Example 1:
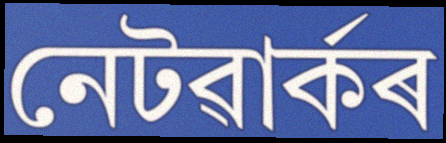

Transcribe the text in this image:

নেটৱাৰ্কৰ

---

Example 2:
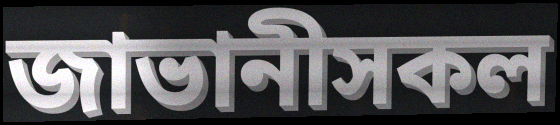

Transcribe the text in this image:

জাভানীসকল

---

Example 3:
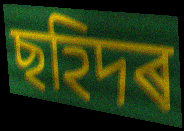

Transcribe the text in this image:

ছহিদৰ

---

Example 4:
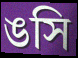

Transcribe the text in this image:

ঙসি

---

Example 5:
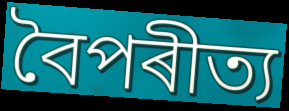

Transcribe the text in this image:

বৈপৰীত্য